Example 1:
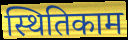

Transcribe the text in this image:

स्थितिकाम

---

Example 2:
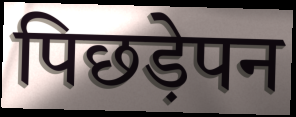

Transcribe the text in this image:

पिछड़ेपन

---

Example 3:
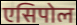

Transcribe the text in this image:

एसिपोल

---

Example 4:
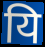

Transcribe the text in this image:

यि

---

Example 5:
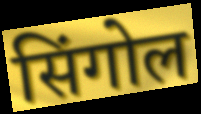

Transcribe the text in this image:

सिंगोल